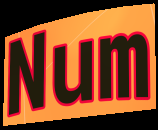
Num